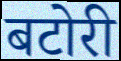
बटोरी